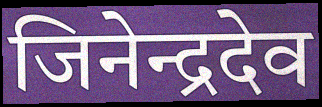
जिनेन्द्रदेव